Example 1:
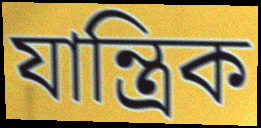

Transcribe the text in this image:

যান্ত্ৰিক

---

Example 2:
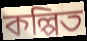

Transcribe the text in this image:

কল্পিত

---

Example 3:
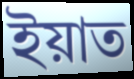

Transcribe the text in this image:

ইয়াত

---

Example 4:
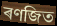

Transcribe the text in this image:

ৰণজিত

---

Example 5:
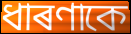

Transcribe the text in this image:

ধাৰণাকে